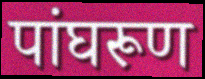
पांघरूण